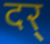
दर्